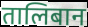
तालिबान